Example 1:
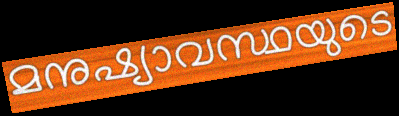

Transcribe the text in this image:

മനുഷ്യാവസ്ഥയുടെ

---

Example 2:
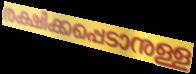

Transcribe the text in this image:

രക്ഷിക്കപ്പെടാനുള്ള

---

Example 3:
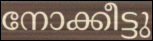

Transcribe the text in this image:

നോക്കീട്ടു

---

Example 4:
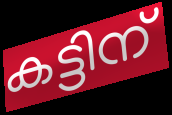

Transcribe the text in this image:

കട്ടിന്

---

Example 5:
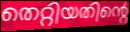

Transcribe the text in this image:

തെറ്റിയതിന്റെ